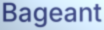
Bageant